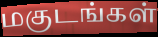
மகுடங்கள்